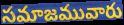
సమాజమువారు